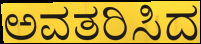
ಅವತರಿಸಿದ